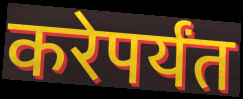
करेपर्यंत